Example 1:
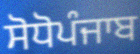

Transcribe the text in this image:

ਸੋਧੋਪੰਜਾਬ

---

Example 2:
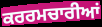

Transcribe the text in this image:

ਕਰਰਮਚਾਰੀਆਂ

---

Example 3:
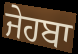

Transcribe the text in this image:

ਜੇਹਬਾ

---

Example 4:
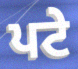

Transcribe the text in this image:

ਪਟੇ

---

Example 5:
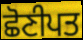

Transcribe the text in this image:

ਛੋਣੀਪਤ